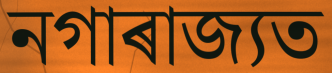
নগাৰাজ্যত